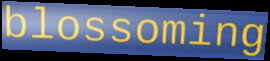
blossoming